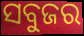
ସବୁଜର